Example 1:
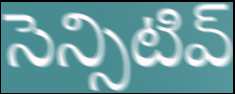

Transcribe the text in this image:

సెన్సిటివ్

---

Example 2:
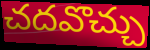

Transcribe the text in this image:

చదవొచ్చు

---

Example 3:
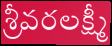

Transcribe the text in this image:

శ్రీవరలక్ష్మీ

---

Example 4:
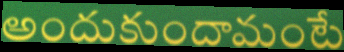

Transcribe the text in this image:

అందుకుందామంటే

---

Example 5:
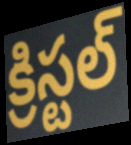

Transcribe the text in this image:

క్రిస్టల్